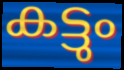
കട്ടും